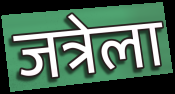
जत्रेला